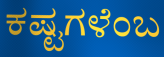
ಕಷ್ಟಗಳೆಂಬ